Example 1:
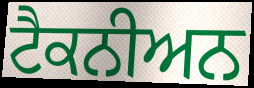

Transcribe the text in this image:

ਟੈਕਨੀਅਨ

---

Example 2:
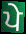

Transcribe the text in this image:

ਪੇ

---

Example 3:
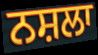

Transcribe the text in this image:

ਨਸ਼ਲਾ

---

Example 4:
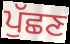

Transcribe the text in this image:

ਪੁੱਛਣ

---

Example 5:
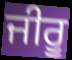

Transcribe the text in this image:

ਜੀਰੂ